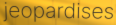
jeopardises